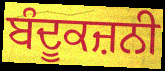
ਬੰਦੂਕਜ਼ਨੀ